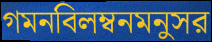
গমনবিলম্বনমনুসর